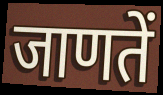
जाणतें